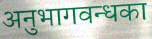
अनुभागवन्धका